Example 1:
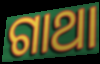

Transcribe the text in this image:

ଗାଥା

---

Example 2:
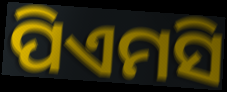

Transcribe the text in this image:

ପିଏମସି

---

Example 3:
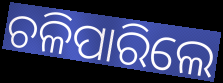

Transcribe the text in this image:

ଚଳିପାରିଲେ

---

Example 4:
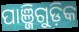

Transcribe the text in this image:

ପାଞ୍ଜିଗୁଡ଼ିକ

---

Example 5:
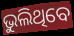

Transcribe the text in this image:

ଭୁଲିଥିବେ